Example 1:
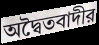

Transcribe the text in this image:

অদ্বৈতবাদীর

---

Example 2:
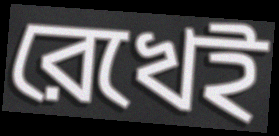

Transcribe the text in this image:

রেখেই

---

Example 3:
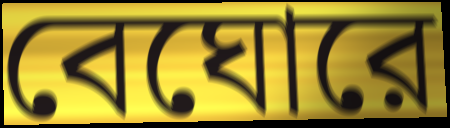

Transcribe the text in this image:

বেঘোরে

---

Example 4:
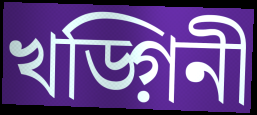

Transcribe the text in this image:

খড়্গিনী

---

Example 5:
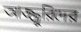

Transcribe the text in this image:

আজ্জুরিদের